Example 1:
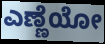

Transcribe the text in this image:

ಎಣ್ಣೆಯೋ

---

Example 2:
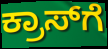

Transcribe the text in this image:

ಕ್ರಾಸ್‌ಗೆ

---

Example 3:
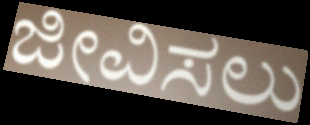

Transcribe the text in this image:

ಜೀವಿಸಲು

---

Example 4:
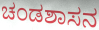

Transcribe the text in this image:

ಚಂಡಶಾಸನ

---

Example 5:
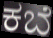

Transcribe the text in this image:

ಕಬೆ